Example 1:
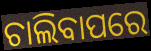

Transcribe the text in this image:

ଚାଲିବାପରେ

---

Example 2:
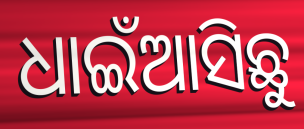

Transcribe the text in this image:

ଧାଇଁଆସିଛୁ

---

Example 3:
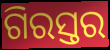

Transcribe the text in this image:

ଗିରସ୍ତର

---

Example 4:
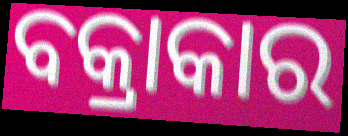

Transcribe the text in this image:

ବକ୍ରାକାର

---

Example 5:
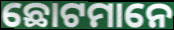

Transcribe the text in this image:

ଛୋଟମାନେ